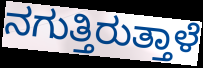
ನಗುತ್ತಿರುತ್ತಾಳೆ